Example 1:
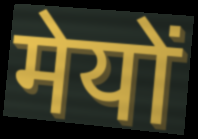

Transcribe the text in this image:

मेयों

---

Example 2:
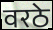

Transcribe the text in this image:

वरठे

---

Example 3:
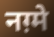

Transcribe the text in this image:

नग़्मे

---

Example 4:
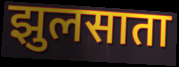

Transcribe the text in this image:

झुलसाता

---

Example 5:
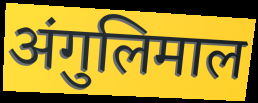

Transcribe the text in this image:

अंगुलिमाल